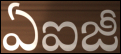
ఏఐజీ